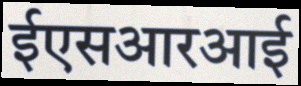
ईएसआरआई